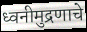
ध्वनीमुद्रणाचे